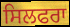
ਸਿਲਫਰਾ